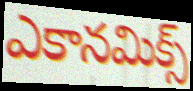
ఎకానమిక్స్